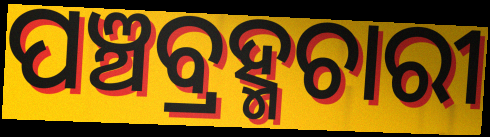
ପଞ୍ଚବ୍ରହ୍ମଚାରୀ